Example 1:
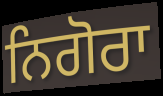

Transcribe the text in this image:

ਨਿਗੋਰਾ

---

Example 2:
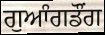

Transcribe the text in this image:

ਗੁਆੰਗਡੌਂਗ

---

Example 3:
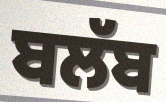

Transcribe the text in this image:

ਬਲੱਬ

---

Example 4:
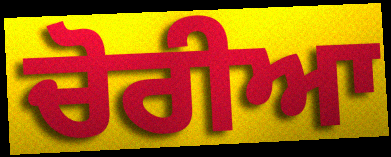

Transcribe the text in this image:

ਚੋਰੀਆ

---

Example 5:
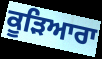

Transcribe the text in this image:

ਕੂੜਿਆਰਾ